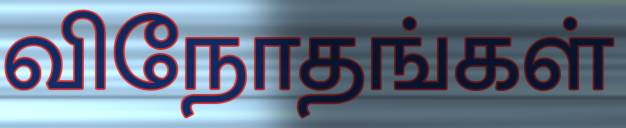
விநோதங்கள்